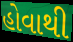
હોવાથી